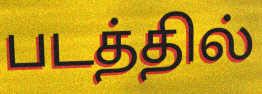
படத்தில்